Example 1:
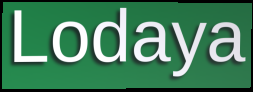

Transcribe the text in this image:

Lodaya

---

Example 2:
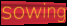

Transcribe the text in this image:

sowing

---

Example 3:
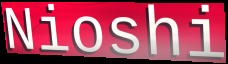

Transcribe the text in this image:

Nioshi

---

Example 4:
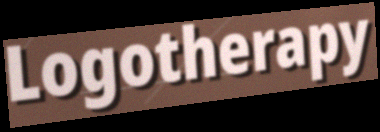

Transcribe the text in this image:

Logotherapy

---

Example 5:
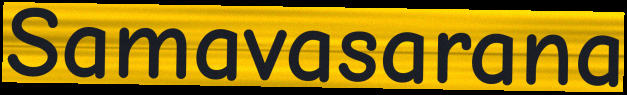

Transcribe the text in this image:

Samavasarana